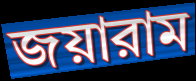
জয়ারাম